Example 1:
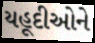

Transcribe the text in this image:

યહૂદીઓને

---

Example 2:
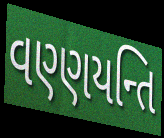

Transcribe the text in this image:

વણ્ણયન્તિ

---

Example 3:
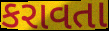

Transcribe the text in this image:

કરાવતા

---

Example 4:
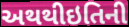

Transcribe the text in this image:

અથથીઇતિની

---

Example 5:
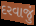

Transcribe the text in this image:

દરવાજું